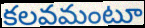
కలవమంటూ